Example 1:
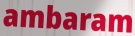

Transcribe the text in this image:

ambaram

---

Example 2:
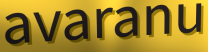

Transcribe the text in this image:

avaranu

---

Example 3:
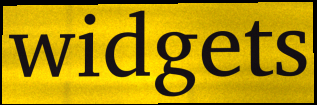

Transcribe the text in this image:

widgets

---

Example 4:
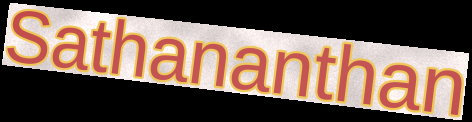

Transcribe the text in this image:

Sathananthan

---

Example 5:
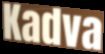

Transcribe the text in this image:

Kadva